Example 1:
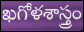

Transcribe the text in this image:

ఖగోళశాస్త్రం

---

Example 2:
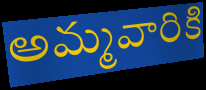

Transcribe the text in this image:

అమ్మవారికి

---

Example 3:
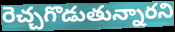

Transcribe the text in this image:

రెచ్చగొడుతున్నారని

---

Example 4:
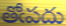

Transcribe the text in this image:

తోఁపదు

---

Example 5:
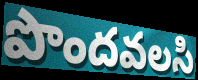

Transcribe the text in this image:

పొందవలసి